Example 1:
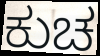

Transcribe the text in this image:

ಕುಚ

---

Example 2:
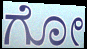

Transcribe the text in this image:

ಗೋ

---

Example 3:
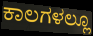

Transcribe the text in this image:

ಕಾಲಗಳಲ್ಲೂ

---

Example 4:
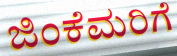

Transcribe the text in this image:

ಜಿಂಕೆಮರಿಗೆ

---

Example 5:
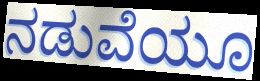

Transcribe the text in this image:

ನಡುವೆಯೂ